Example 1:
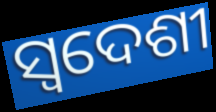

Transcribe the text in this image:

ସ୍ୱଦେଶୀ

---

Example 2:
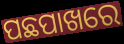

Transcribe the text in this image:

ପଛପାଖରେ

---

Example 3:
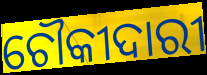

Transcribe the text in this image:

ଚୌକୀଦାରୀ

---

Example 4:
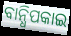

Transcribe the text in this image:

ବାନ୍ଧିପକାଇ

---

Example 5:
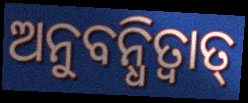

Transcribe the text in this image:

ଅନୁବନ୍ଧିତ୍ଵାତ୍